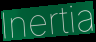
Inertia